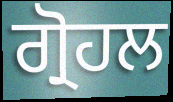
ਗ੍ਰੋਹਲ